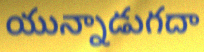
యున్నాడుగదా